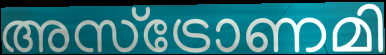
അസ്ട്രോണമി